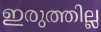
ഇരുത്തില്ല